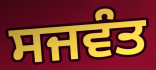
ਸਜਵੰਤ